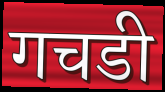
गचडी